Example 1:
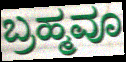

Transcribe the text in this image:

ಬ್ರಹ್ಮವೂ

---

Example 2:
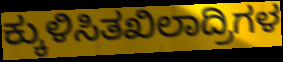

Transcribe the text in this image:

ಕ್ಕುಳಿಸಿತಖಿಲಾದ್ರಿಗಳ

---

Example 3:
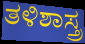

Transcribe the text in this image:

ತಳಿಶಾಸ್ತ್ರ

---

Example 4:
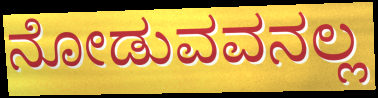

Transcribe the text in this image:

ನೋಡುವವನಲ್ಲ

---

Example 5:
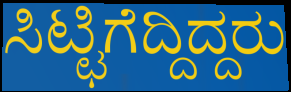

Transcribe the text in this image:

ಸಿಟ್ಟಿಗೆದ್ದಿದ್ದರು